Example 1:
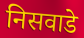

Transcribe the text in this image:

निसवाडे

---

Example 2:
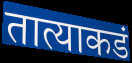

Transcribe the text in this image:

तात्याकडं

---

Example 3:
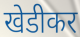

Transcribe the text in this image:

खेडीकर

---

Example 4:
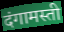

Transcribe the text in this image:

दंगामस्ती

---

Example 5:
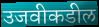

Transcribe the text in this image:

उजवीकडील